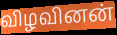
விழவினன்